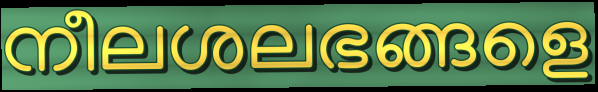
നീലശലഭങ്ങളെ